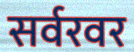
सर्वरवर